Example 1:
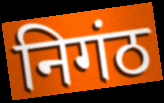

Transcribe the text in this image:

निगंठ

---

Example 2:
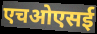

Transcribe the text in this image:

एचओएसई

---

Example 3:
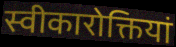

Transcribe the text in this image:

स्वीकारोक्तियां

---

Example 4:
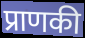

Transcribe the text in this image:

प्राणकी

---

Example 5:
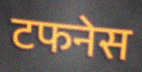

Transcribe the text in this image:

टफनेस